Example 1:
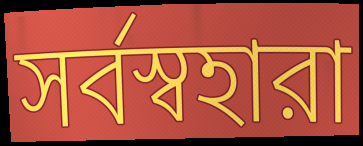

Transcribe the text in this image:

সর্বস্বহারা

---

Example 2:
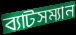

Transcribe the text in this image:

ব্যাটসম্যান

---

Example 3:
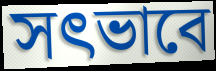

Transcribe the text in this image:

সৎভাবে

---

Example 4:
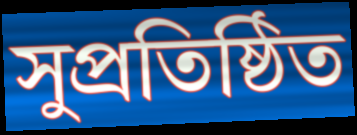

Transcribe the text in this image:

সুপ্রতিষ্ঠিত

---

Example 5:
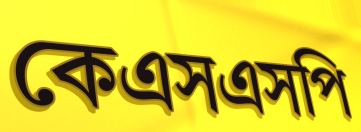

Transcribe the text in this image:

কেএসএসপি